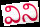
విని